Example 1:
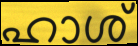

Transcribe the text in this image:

ഹാശ്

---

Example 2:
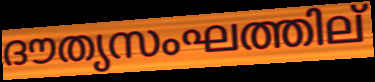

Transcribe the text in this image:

ദൗത്യസംഘത്തില്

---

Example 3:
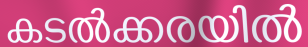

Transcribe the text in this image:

കടൽക്കരയിൽ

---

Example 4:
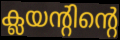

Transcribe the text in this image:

ക്ലയന്റിന്റെ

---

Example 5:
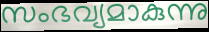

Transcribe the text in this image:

സംഭവ്യമാകുന്നു